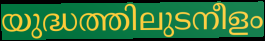
യുദ്ധത്തിലുടനീളം